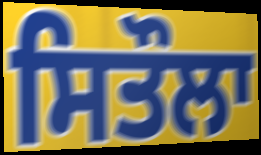
ਸਿਤੌਲਾ